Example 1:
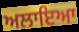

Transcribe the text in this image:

ਅਲਾਇਆ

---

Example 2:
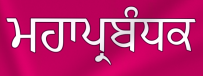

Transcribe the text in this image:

ਮਹਾਪ੍ਰਬੰਧਕ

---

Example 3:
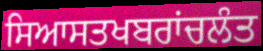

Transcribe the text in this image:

ਸਿਆਸਤਖਬਰਾਂਚਲੰਤ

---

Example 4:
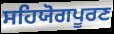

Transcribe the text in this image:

ਸਹਿਯੋਗਪੂਰਣ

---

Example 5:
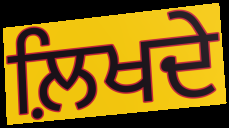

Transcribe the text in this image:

ਲ਼ਿਖਦੇ